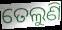
ତେଲୁଣି